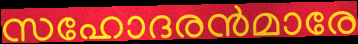
സഹോദരൻമാരേ